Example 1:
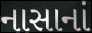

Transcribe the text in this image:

નાસાનાં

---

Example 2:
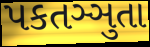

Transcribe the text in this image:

પકતઞ્ઞુતા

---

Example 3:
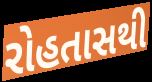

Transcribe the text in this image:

રોહતાસથી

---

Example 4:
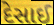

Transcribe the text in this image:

દેસાઈ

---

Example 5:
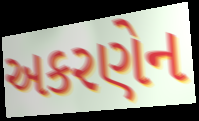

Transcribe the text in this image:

અકરણેન